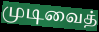
முடிவைத்